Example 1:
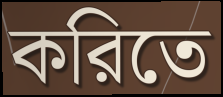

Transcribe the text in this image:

করিতে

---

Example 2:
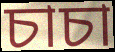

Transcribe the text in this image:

চাচা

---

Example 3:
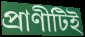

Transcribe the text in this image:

প্রাণীটিই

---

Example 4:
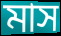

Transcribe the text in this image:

মাস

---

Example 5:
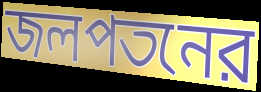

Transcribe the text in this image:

জলপতনের